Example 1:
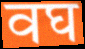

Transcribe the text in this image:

वघ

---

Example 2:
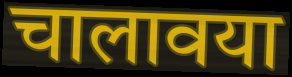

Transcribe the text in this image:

चालावया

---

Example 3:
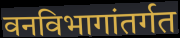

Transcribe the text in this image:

वनविभागांतर्गत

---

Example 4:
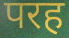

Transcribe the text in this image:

परह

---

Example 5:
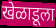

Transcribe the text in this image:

खेळाडूला